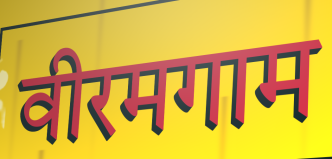
वीरमगाम